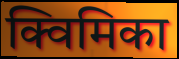
क्विमिका